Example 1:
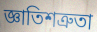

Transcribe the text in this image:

জ্ঞাতিশত্রুতা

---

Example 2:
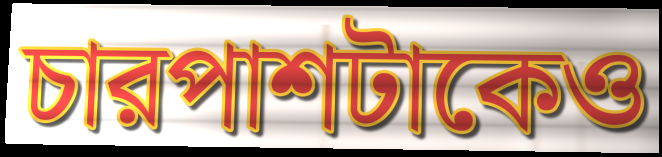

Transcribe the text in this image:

চারপাশটাকেও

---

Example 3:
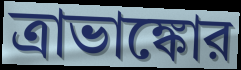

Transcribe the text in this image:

ত্রাভাঙ্কোর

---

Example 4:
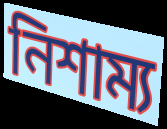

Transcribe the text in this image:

নিশাম্য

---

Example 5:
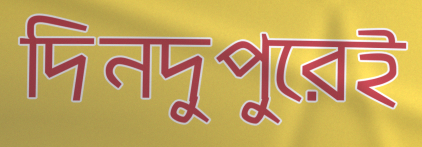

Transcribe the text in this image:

দিনদুপুরেই